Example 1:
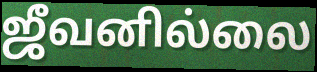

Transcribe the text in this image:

ஜீவனில்லை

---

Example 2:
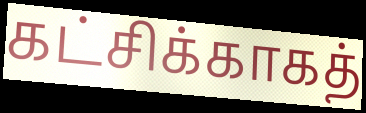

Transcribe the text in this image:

கட்சிக்காகத்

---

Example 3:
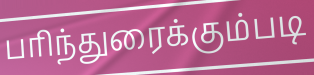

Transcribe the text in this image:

பரிந்துரைக்கும்படி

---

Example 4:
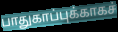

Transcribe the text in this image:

பாதுகாப்புக்காகச்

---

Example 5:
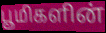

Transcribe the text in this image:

பூமிகளின்